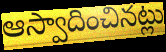
ఆస్వాదించినట్లు